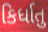
કિર્ધાતુ